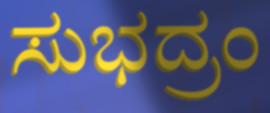
ಸುಭದ್ರಂ